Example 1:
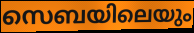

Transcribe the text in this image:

സെബയിലെയും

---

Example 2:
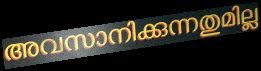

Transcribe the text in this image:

അവസാനിക്കുന്നതുമില്ല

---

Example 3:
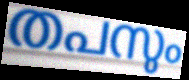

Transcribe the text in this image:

തപസും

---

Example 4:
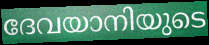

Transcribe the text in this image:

ദേവയാനിയുടെ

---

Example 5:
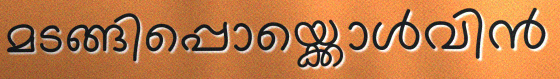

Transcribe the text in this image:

മടങ്ങിപ്പൊയ്ക്കൊൾവിൻ